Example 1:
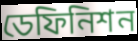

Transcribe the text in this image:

ডেফিনিশন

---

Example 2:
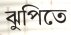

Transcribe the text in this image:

ঝুপিতে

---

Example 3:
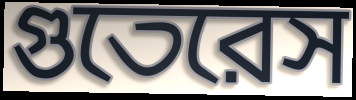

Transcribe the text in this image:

গুতেরেস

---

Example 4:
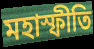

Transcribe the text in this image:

মহাস্ফীতি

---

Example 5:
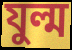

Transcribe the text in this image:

যুল্ম